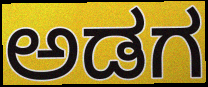
ಅಡಗ